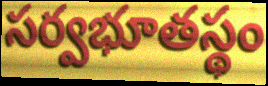
సర్వభూతస్థం